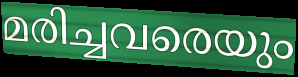
മരിച്ചവരെയും